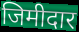
जिमीदार